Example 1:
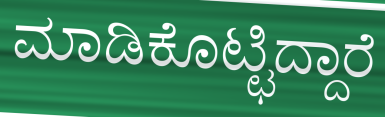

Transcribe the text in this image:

ಮಾಡಿಕೊಟ್ಟಿದ್ದಾರೆ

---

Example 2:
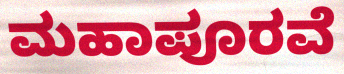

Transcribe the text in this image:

ಮಹಾಪೂರವೆ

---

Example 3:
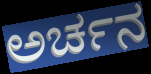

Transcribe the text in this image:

ಅರ್ಚನ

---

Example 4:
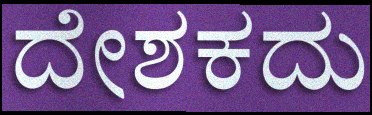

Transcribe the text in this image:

ದೇಶಕದು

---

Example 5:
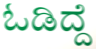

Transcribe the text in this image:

ಓಡಿದ್ದೆ